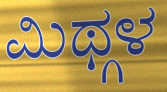
ಮಿಥ್ಗಳ